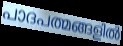
പാദപത്മങ്ങളിൽ